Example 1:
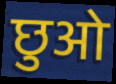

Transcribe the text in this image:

छुओ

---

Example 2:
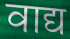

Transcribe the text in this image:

वाद्य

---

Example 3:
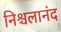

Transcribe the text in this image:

निश्चलानंद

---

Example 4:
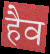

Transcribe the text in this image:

हैव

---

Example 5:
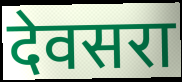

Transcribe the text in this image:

देवसरा